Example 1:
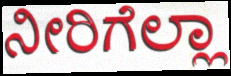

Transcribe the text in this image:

ನೀರಿಗೆಲ್ಲಾ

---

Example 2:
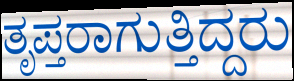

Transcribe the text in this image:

ತೃಪ್ತರಾಗುತ್ತಿದ್ದರು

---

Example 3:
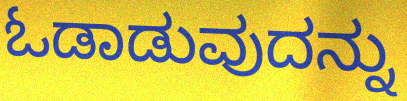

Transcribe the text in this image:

ಓಡಾಡುವುದನ್ನು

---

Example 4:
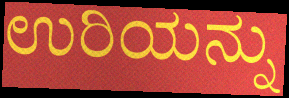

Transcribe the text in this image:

ಉರಿಯನ್ನು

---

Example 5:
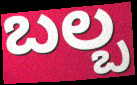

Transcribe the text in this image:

ಬಲ್ಬ